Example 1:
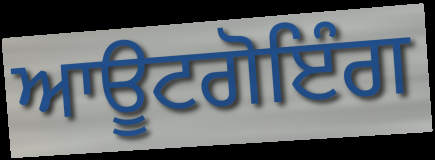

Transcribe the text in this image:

ਆਊਟਗੋਇੰਗ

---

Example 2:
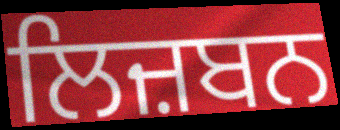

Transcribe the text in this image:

ਲਿਜ਼ਬਨ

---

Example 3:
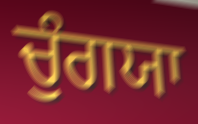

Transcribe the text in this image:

ਚੁੰਗਯਾ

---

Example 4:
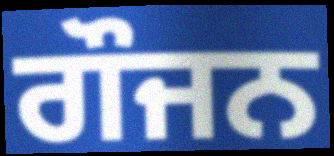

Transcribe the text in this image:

ਗੌਜਨ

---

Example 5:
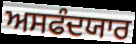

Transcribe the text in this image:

ਅਸਫੰਦਯਾਰ